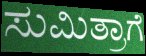
ಸುಮಿತ್ರಾಗೆ